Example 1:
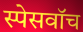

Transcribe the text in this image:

स्पेसवॉच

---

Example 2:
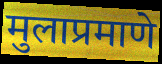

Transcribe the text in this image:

मुलाप्रमाणे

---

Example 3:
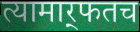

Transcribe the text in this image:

त्यामार्फतच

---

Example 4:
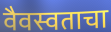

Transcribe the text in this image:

वैवस्वताचा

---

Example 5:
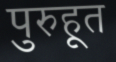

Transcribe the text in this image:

पुरुहूत